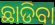
ଛାଡିବା